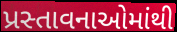
પ્રસ્તાવનાઓમાંથી